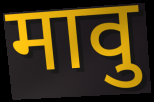
मावु